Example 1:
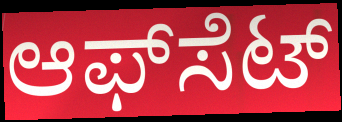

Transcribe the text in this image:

ಆಫ್‍ಸೆಟ್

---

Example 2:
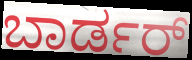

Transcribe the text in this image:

ಬಾರ್ಡರ್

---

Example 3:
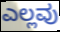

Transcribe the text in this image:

ಎಲ್ಲವು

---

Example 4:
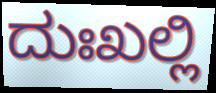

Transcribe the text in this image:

ದುಃಖಲ್ಲಿ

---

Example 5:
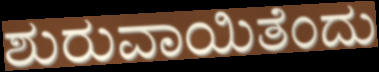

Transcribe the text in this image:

ಶುರುವಾಯಿತೆಂದು